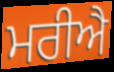
ਮਰੀਐ